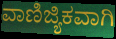
ವಾಣಿಜ್ಯಿಕವಾಗಿ